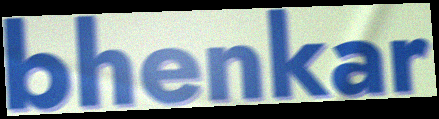
bhenkar